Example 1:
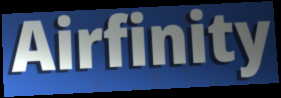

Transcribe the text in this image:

Airfinity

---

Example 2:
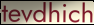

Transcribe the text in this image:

tevdhich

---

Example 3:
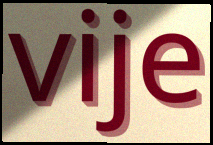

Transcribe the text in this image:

vije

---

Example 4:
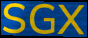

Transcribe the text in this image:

SGX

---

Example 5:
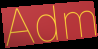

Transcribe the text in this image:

Adm